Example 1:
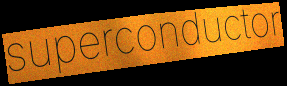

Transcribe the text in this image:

superconductor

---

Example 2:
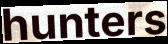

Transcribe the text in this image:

hunters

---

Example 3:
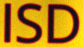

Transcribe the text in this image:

ISD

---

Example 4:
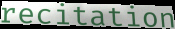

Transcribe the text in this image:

recitation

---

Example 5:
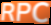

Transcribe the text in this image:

RPC